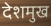
देशमुख